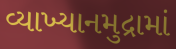
વ્યાખ્યાનમુદ્રામાં